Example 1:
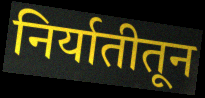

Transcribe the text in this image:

निर्यातीतून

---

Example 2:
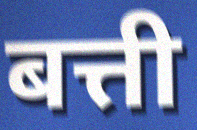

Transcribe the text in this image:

बत्ती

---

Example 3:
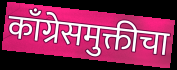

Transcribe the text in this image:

काँग्रेसमुक्तीचा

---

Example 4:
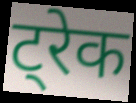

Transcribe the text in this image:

ट्रेक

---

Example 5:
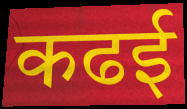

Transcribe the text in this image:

कढई